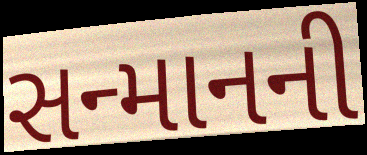
સન્માનની